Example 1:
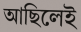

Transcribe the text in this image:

আছিলেই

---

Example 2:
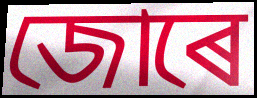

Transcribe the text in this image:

জোৰে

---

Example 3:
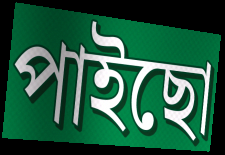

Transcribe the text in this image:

পাইছো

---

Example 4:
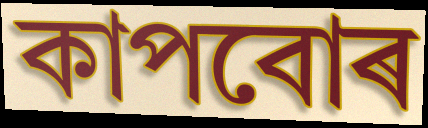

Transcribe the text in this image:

কাপবোৰ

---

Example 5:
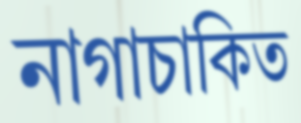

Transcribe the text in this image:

নাগাচাকিত